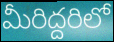
మీరిద్దరిలో